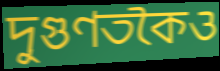
দুগুণতকৈও